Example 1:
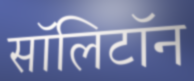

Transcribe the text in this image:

सॉलिटॉन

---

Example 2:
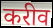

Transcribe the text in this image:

करीव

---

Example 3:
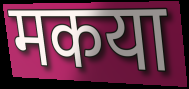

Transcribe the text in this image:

मकया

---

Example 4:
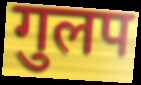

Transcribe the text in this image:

गुलप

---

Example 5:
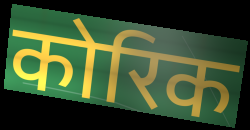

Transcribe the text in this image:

कोरिक